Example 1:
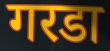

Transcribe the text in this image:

गरडा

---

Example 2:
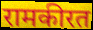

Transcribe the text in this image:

रामकीरत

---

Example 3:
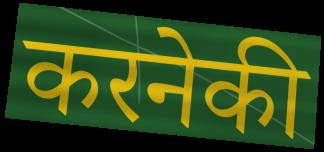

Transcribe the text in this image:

करनेकी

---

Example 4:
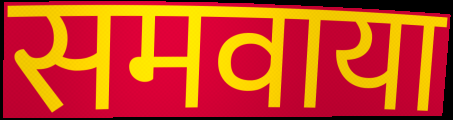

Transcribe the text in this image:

समवाया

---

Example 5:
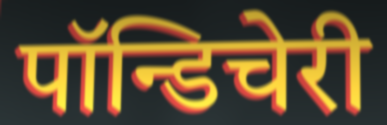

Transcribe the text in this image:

पॉन्डिचेरी